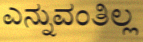
ಎನ್ನುವಂತಿಲ್ಲ